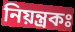
নিয়ন্ত্রকঃ